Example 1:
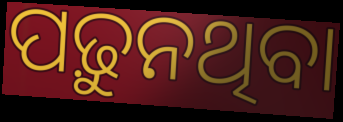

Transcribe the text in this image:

ପଢ଼ୁନଥିବା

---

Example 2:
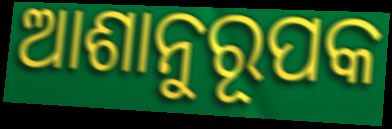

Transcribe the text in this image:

ଆଶାନୁରୂପକ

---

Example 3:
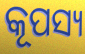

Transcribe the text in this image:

କୂପସ୍ୟ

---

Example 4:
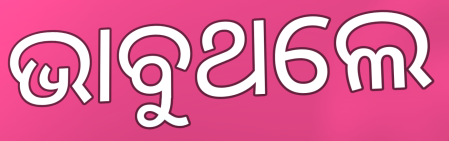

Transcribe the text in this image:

ଭାବୁଥଲେ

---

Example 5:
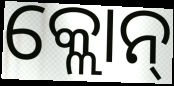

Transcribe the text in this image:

କ୍ଲୋନ୍